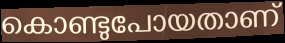
കൊണ്ടുപോയതാണ്